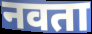
नवता